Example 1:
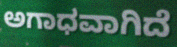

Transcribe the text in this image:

ಅಗಾಧವಾಗಿದೆ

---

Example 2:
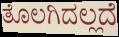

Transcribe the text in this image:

ತೊಲಗಿದಲ್ಲದೆ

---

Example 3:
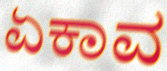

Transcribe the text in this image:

ಏಕಾವ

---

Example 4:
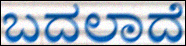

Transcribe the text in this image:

ಬದಲಾದೆ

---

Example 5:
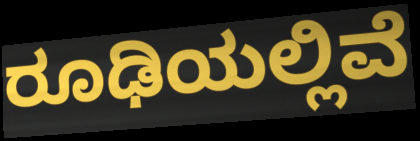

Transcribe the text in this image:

ರೂಢಿಯಲ್ಲಿವೆ